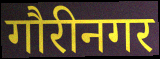
गौरीनगर